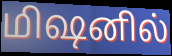
மிஷனில்